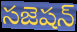
సజెషన్